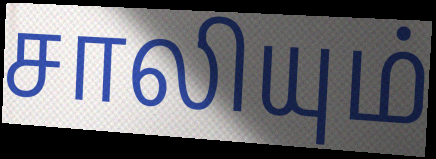
சாலியும்